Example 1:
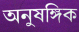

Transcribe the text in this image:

অনুষঙ্গিক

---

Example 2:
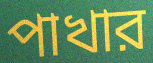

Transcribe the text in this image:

পাখার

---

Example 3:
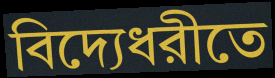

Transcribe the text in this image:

বিদ্যেধরীতে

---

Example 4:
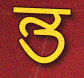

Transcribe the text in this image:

ন্ত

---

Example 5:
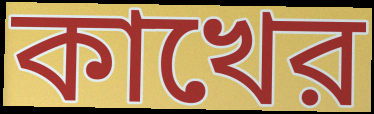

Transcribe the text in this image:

কাখের